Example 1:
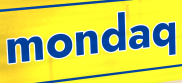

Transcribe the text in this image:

mondaq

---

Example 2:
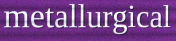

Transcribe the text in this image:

metallurgical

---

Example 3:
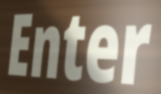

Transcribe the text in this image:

Enter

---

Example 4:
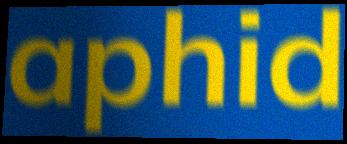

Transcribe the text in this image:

aphid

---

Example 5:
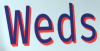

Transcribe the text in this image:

Weds